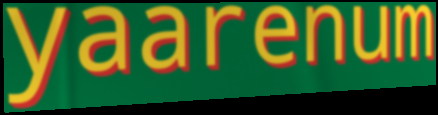
yaarenum